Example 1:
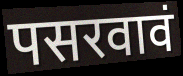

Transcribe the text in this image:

पसरवावं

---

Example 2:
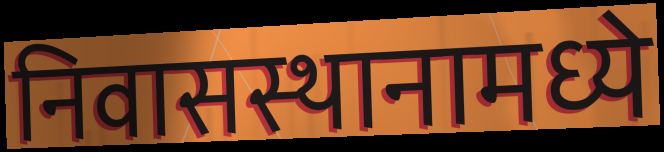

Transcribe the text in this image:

निवासस्थानामध्ये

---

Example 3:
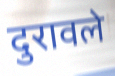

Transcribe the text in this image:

दुरावले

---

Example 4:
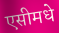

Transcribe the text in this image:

एसीमधे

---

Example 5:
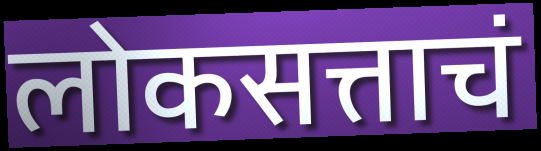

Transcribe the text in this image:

लोकसत्ताचं